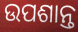
ଉପଶାନ୍ତ